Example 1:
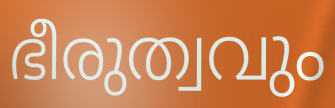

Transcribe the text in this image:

ഭീരുത്വവും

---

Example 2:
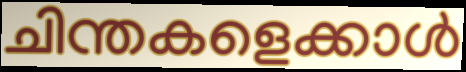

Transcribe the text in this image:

ചിന്തകളെക്കാൾ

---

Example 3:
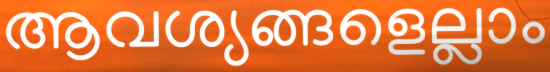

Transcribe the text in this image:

ആവശ്യങ്ങളെല്ലാം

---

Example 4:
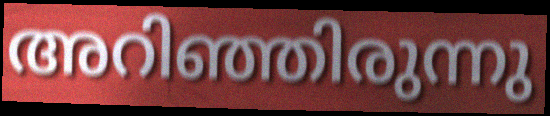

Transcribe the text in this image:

അറിഞ്ഞിരുന്നു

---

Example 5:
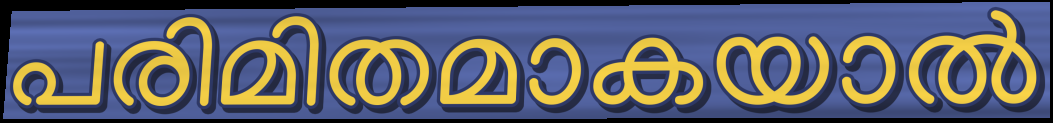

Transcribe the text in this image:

പരിമിതമാകയാൽ